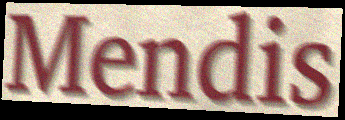
Mendis